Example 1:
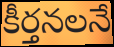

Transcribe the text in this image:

కీర్తనలనే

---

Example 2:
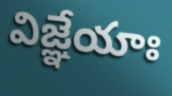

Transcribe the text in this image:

విజ్ఞేయాః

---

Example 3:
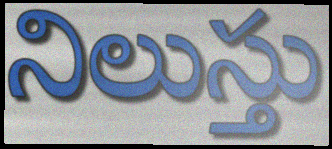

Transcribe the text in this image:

నిలుస్తు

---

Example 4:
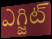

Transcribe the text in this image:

ఎగ్జిట్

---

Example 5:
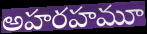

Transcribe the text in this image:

అహరహమూ